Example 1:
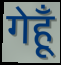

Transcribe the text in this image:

गेहूँ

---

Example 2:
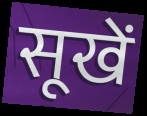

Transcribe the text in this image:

सूखें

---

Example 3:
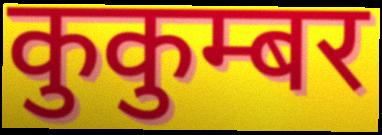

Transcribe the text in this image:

कुकुम्बर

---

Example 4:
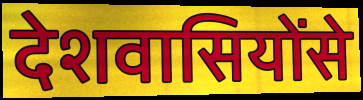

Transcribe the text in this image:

देशवासियोंसे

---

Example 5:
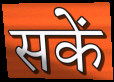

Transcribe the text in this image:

सकें